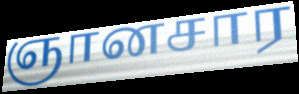
ஞானசார